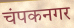
चंपकनगर